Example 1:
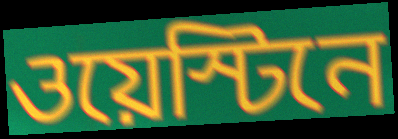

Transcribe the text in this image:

ওয়েস্টিনে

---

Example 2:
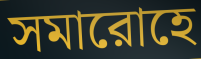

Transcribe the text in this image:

সমারোহে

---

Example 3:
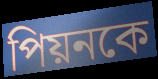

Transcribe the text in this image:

পিয়নকে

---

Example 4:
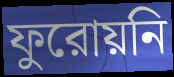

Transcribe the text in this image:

ফুরোয়নি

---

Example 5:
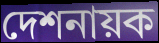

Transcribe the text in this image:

দেশনায়ক